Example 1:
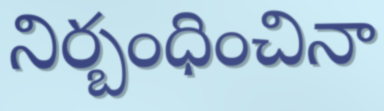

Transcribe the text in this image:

నిర్బంధించినా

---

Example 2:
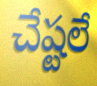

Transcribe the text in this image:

చేష్టలే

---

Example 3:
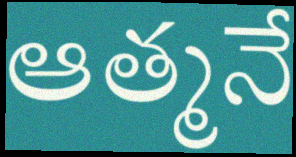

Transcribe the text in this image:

ఆత్మనే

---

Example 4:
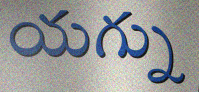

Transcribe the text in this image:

యగ్ను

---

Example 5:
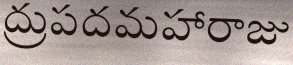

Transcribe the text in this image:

ద్రుపదమహారాజు